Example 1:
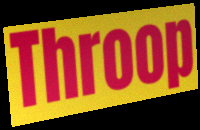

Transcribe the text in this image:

Throop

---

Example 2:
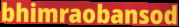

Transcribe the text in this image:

bhimraobansod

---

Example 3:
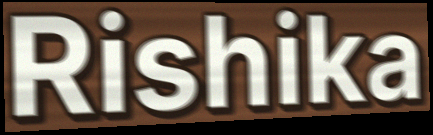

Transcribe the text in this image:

Rishika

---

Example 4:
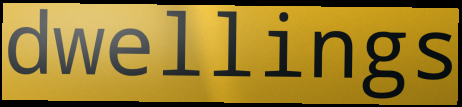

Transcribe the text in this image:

dwellings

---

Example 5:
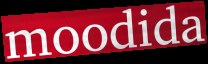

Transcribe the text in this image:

moodida